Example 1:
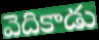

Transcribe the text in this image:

వెదికాడు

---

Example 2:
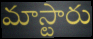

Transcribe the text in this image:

మాస్టారు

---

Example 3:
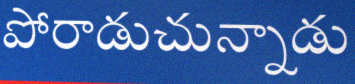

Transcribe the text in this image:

పోరాడుచున్నాడు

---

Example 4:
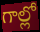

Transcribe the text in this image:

గాల్లో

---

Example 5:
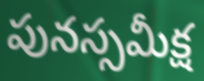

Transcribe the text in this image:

పునస్సమీక్ష